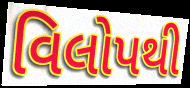
વિલોપથી